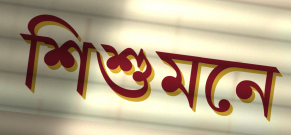
শিশুমনে